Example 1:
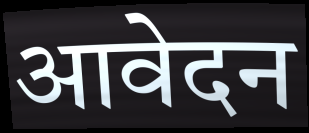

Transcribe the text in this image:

आवेदन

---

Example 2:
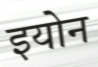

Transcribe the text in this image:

इयोन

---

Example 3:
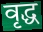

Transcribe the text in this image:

वृद्ध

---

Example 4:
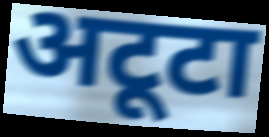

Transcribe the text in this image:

अटूटा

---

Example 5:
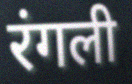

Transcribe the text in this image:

रंगली